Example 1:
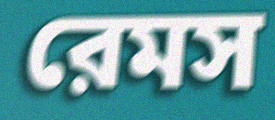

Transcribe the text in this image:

রেমস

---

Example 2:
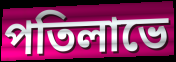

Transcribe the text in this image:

পতিলাভে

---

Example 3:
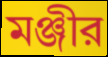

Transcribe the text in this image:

মঞ্জীর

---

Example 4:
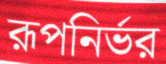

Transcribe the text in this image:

রূপনির্ভর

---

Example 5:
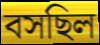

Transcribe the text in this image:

বসছিল